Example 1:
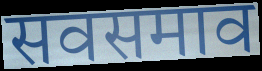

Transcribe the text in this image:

सवसमाव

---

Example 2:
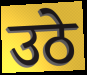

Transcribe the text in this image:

उठे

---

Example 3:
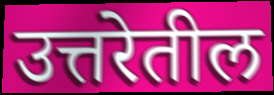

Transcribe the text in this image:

उत्तरेतील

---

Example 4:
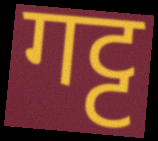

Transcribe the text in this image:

गट्ट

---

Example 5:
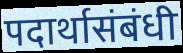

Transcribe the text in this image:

पदार्थासंबंधी